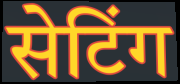
सेटिंग